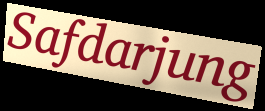
Safdarjung